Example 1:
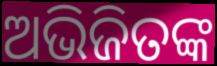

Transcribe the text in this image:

ଅଭିଜିତଙ୍କ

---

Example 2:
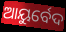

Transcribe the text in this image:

ଆୟୁର୍ବେଦ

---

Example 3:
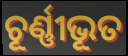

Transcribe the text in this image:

ଚୂର୍ଣ୍ଣୀଭୂତ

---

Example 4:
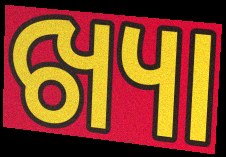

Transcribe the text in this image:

ଖ୍ୟା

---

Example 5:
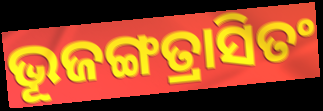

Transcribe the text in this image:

ଭୂଜଙ୍ଗତ୍ରାସିତଂ